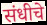
संधीचे